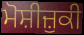
ਮੋਸ਼ੀਜ਼ੁਕੀ